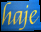
haje